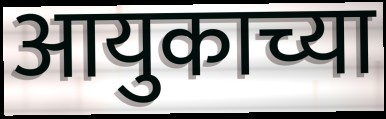
आयुकाच्या